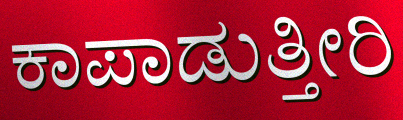
ಕಾಪಾಡುತ್ತೀರಿ